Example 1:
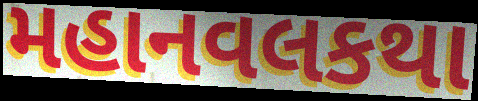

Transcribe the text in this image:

મહાનવલકથા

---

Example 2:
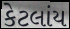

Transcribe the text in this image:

કેટલાંય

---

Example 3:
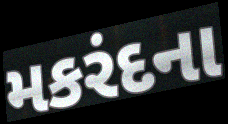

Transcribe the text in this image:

મકરંદના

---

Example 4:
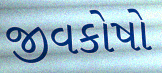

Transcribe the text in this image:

જીવકોષો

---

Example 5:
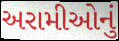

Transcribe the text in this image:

અરામીઓનું